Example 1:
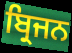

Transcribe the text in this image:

ਬ੍ਰਿਜਨ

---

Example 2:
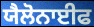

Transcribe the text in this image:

ਯੈਲੋਨਾਈਫ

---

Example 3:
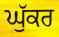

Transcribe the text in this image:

ਘੁੱਕਰ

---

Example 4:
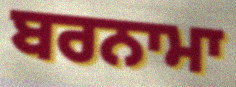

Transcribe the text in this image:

ਬਰਨਾਮਾ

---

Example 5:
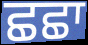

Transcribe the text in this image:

ਛਛਾ